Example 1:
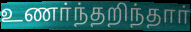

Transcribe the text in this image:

உணர்ந்தறிந்தார்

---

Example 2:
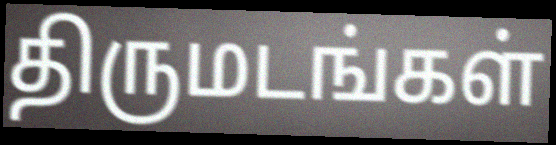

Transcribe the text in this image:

திருமடங்கள்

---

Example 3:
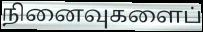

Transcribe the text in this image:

நினைவுகளைப்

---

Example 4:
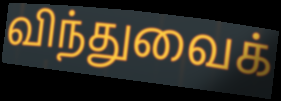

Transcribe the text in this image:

விந்துவைக்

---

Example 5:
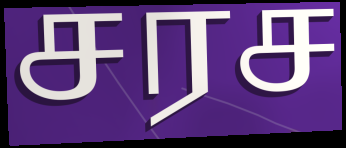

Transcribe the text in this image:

சரச